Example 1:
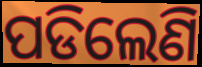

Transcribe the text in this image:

ପଡିଲେଣି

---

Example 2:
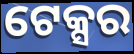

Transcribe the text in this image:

ଟେକ୍ସର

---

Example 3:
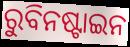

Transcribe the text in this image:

ରୁବିନଷ୍ଟାଇନ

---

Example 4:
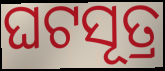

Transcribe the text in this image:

ଘଟସୂତ୍ର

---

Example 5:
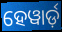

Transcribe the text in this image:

ହେୱାର୍ଡ଼